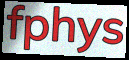
fphys